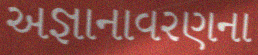
અજ્ઞાનાવરણના